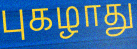
புகழாது